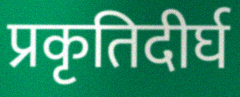
प्रकृतिदीर्घ